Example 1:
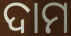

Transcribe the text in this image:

ଦାମ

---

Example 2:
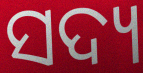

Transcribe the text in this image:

ସଦ୍ୟ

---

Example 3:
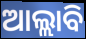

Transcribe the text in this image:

ଆଲ୍ଲାବି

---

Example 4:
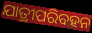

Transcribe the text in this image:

ଯାତ୍ରୀପରିବହନ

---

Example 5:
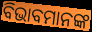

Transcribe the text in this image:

ବିଭାବମାନଙ୍କ